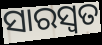
ସାରସ୍ବତ